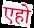
एहो